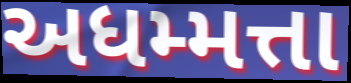
અધમ્મત્તા